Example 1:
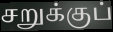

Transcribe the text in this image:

சறுக்குப்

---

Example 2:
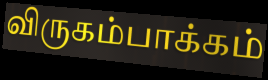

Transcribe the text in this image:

விருகம்பாக்கம்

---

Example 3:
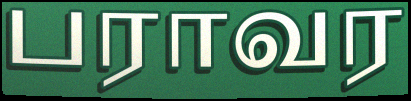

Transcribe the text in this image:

பராவர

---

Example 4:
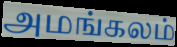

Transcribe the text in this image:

அமங்கலம்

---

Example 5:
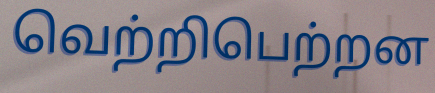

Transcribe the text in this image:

வெற்றிபெற்றன